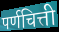
पर्णचित्ती